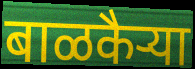
बाळकैऱ्या